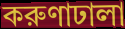
করুণাঢালা